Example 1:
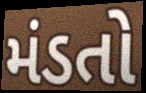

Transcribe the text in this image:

મંડતો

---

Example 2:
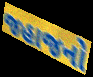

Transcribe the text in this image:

જહાજનો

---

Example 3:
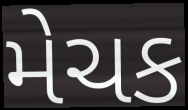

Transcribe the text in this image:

મેચક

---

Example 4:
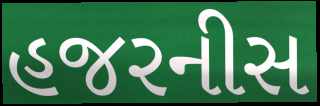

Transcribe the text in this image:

હજરનીસ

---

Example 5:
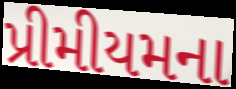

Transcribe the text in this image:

પ્રીમીયમના